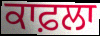
ਕਾਫ਼ਲਾ